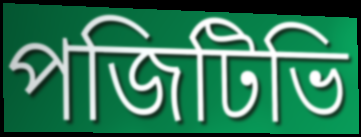
পজিটিভি